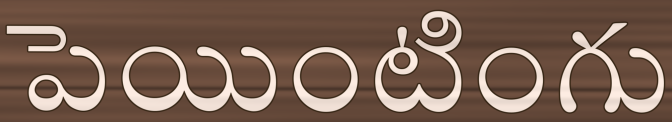
పెయింటింగు